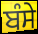
ਬੰਸੇ